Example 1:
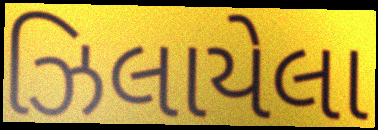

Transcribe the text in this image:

ઝિલાયેલા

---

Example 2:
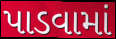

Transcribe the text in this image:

પાડવામાં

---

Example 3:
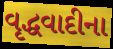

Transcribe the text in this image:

વૃદ્ધવાદીના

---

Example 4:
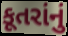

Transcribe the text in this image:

કૂતરાંનું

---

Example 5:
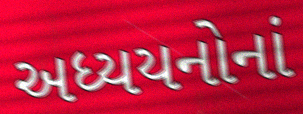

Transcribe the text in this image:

અધ્યયનોનાં